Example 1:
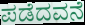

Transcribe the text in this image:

ಪಡೆದವನೆ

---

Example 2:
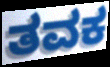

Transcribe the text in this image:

ತವಕ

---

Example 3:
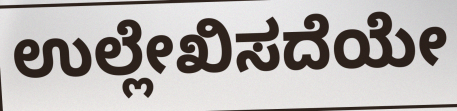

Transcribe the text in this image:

ಉಲ್ಲೇಖಿಸದೆಯೇ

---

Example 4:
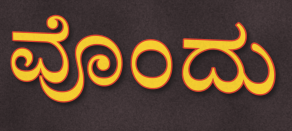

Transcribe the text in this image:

ವೊಂದು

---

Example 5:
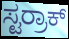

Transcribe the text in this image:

ಸ್ಟರ್ರಾಕ್